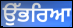
ਉੱਭਰਿਆ